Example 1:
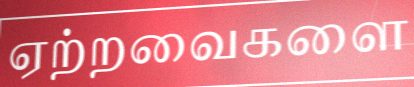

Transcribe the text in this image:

ஏற்றவைகளை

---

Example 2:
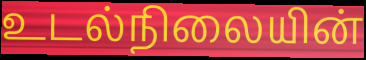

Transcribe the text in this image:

உடல்நிலையின்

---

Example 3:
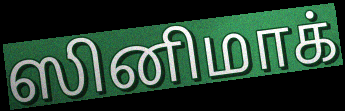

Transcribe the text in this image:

ஸினிமாக்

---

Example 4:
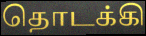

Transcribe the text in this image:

தொடக்கி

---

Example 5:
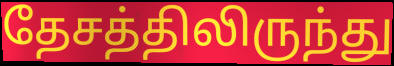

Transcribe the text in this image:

தேசத்திலிருந்து